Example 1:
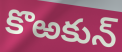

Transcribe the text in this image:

కొఱకున్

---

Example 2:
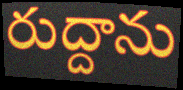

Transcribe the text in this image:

రుద్దాను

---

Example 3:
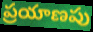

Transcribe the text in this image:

ప్రయాణపు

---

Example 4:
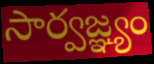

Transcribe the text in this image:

సార్వజ్ఞ్యం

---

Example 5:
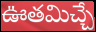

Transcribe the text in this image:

ఊతమిచ్చే